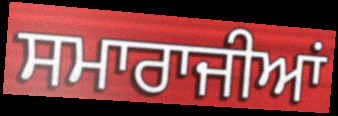
ਸਮਾਰਾਜੀਆਂ